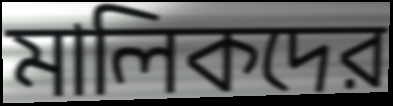
মালিকদের